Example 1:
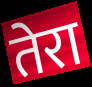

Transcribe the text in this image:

तेरा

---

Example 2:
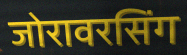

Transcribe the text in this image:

जोरावरसिंग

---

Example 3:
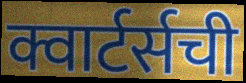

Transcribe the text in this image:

क्वार्टर्सची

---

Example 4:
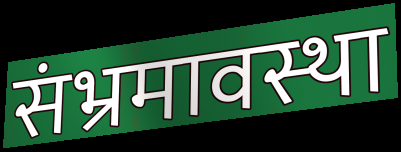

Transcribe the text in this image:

संभ्रमावस्था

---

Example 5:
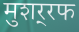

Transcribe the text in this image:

मुशर्रफ